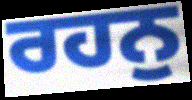
ਰਹਨੁ